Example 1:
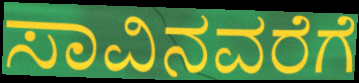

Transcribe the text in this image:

ಸಾವಿನವರೆಗೆ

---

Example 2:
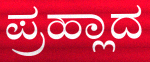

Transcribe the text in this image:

ಪ್ರಹ್ಲಾದ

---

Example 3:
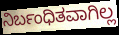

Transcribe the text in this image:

ನಿರ್ಬಂಧಿತವಾಗಿಲ್ಲ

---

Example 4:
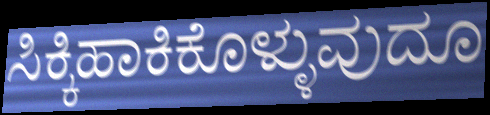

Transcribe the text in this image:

ಸಿಕ್ಕಿಹಾಕಿಕೊಳ್ಳುವುದೂ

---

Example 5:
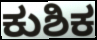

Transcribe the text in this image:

ಕುಶಿಕ